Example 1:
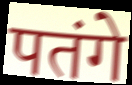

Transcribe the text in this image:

पतंगे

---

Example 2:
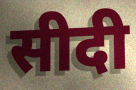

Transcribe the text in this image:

सीदी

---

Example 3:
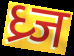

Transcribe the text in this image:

ध्र्ज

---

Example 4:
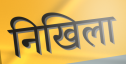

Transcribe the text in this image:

निखिला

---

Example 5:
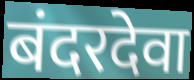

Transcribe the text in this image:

बंदरदेवा